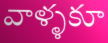
వాళ్ళకూ